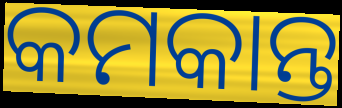
କମକାନ୍ତ